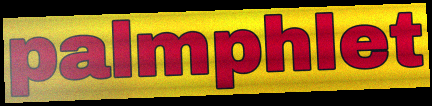
palmphlet